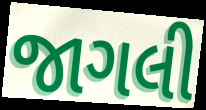
જાગલી